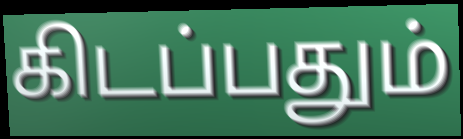
கிடப்பதும்